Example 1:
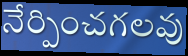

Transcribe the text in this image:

నేర్పించగలవు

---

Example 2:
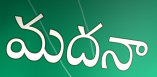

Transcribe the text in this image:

మదనా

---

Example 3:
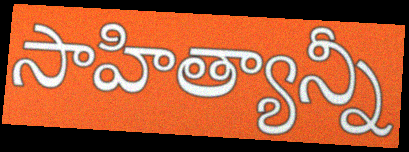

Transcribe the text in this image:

సాహిత్యాన్నీ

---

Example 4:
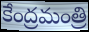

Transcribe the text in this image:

కేంద్రమంత్రి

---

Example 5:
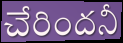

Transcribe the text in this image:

చేరిందనీ